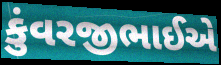
કુંવરજીભાઈએ